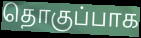
தொகுப்பாக